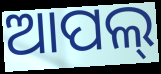
ଆପଲ୍